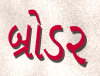
બ્રોડર